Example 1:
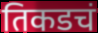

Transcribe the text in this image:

तिकडचं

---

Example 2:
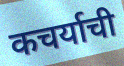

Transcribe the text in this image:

कचर्याची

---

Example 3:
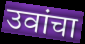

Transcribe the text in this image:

उवांचा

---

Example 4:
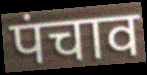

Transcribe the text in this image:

पंचाव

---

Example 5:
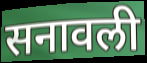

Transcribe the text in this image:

सनावली